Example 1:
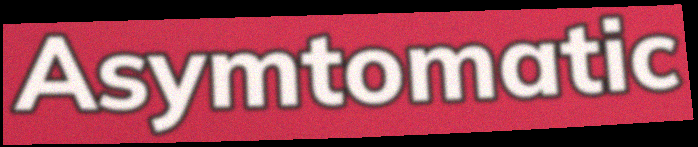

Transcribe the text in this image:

Asymtomatic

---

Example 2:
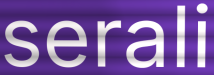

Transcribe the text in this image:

serali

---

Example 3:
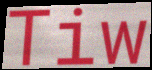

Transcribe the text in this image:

Tiw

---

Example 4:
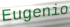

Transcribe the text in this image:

Eugenio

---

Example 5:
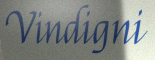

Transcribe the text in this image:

Vindigni